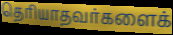
தெரியாதவர்களைக்